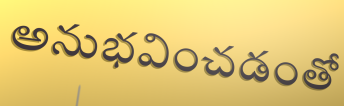
అనుభవించడంతో